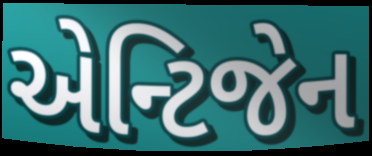
એન્ટિજેન